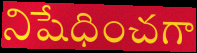
నిషేధించగా